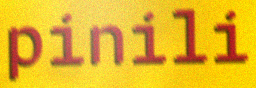
pinili